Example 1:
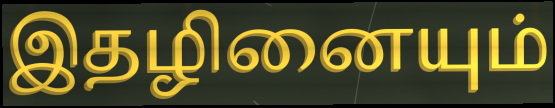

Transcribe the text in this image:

இதழினையும்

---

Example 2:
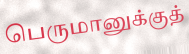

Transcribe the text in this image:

பெருமானுக்குத்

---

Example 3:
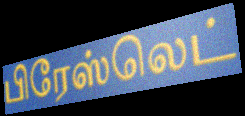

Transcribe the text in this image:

பிரேஸ்லெட்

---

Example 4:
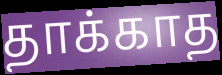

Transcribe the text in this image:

தாக்காத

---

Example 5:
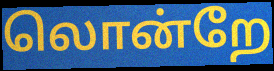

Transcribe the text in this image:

லொன்றே